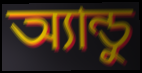
অ্যান্ডু